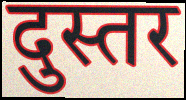
दुस्तर